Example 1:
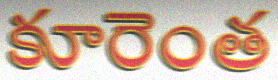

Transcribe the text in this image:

కూరెంత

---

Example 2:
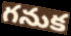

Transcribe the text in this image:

గనుక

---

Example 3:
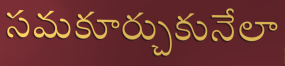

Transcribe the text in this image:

సమకూర్చుకునేలా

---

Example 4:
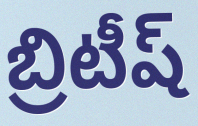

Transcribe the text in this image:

బ్రిటీష్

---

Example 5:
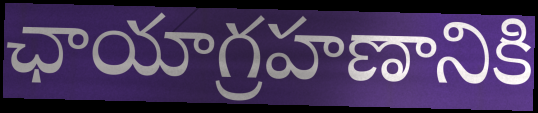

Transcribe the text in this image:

ఛాయాగ్రహణానికి